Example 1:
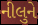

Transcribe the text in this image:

નીલુને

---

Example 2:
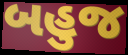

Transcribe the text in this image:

બહુજ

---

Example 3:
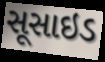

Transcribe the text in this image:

સૂસાઇડ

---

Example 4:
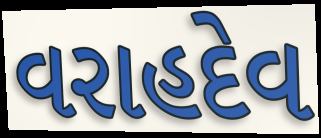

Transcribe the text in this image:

વરાહદેવ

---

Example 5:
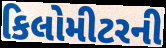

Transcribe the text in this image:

કિલોમીટરની